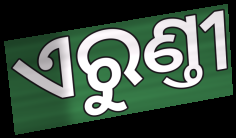
ଏରୁଣ୍ତୀ